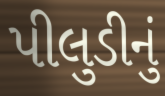
પીલુડીનું